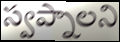
స్వప్నాలని